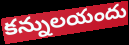
కన్నులయందు